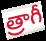
త్రాగీ